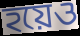
হয়েও